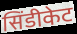
सिंडीकेट